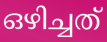
ഒഴിച്ചത്